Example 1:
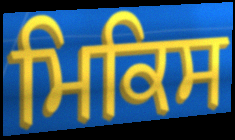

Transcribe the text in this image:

ਮਿਕਿਸ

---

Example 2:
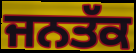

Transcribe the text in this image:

ਜਨਤੱਕ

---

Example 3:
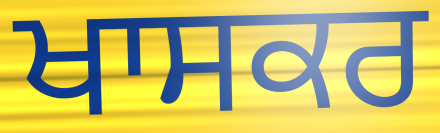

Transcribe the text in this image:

ਖਾਸਕਰ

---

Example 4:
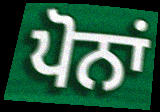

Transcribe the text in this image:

ਪੋਨਾਂ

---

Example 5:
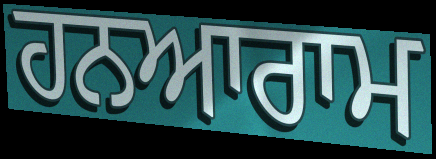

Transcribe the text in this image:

ਹਨਆਰਾਮ